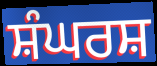
ਸ਼ੰਘਰਸ਼